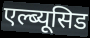
एल्ब्यूसिड